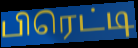
பிரெட்டி